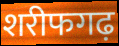
शरीफगढ़